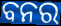
ବନର